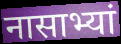
नासाभ्यां